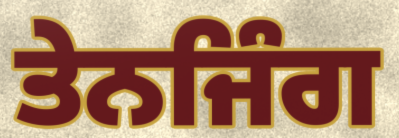
ਤੇਨਜਿੰਗ